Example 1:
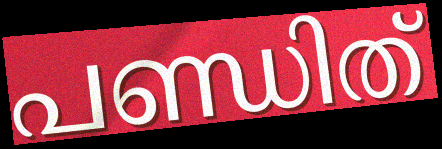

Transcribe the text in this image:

പണ്ഡിത്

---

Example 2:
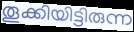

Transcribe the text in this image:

തൂക്കിയിട്ടിരുന്ന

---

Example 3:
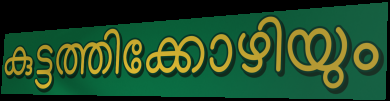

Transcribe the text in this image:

കുട്ടത്തിക്കോഴിയും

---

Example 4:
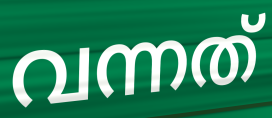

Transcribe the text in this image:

വന്നത്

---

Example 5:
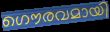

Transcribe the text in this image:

ഗൌരവമായി